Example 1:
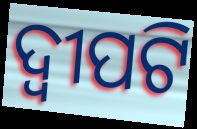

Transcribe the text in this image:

ଦ୍ୱୀପଟି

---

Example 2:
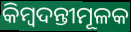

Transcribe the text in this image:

କିମ୍ବଦନ୍ତୀମୂଳକ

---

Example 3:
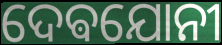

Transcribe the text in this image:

ଦେଵଯୋନୀ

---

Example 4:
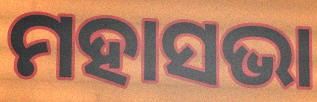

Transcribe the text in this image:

ମହାସଭା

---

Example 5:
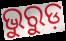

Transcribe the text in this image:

ଭୁରୁଡ଼